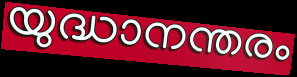
യുദ്ധാനന്തരം